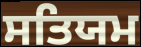
ਸਤਿਯਮ